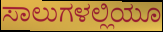
ಸಾಲುಗಳಲ್ಲಿಯೂ